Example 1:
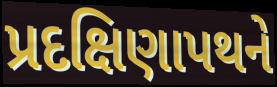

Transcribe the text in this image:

પ્રદક્ષિણાપથને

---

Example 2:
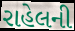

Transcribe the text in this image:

રાહેલની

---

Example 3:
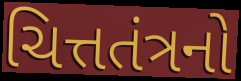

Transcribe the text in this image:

ચિત્તતંત્રનો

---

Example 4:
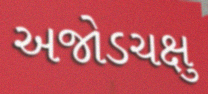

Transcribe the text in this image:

અજોડચક્ષુ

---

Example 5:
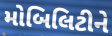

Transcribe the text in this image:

મોબિલિટીને